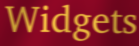
Widgets